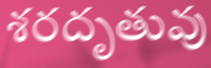
శరదృతువు